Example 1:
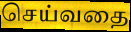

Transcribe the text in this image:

செய்வதை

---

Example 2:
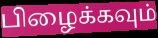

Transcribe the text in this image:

பிழைக்கவும்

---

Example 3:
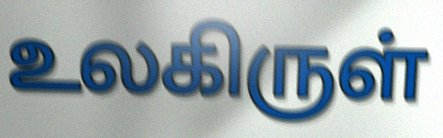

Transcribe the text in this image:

உலகிருள்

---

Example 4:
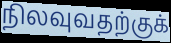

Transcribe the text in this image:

நிலவுவதற்குக்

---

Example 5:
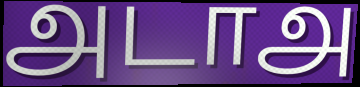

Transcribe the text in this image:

அடாஅ